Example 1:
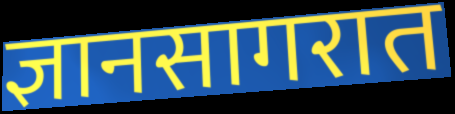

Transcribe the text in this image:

ज्ञानसागरात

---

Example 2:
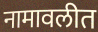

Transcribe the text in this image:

नामावलीत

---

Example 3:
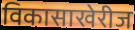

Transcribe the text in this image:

विकासाखेरीज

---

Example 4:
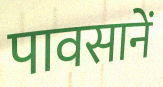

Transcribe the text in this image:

पावसानें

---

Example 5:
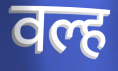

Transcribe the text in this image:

वल्ह